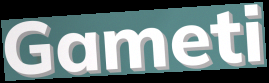
Gameti